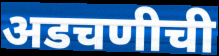
अडचणीची